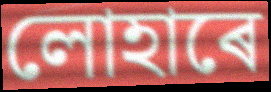
লোহাৰে